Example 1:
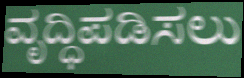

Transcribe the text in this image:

ವೃದ್ಧಿಪಡಿಸಲು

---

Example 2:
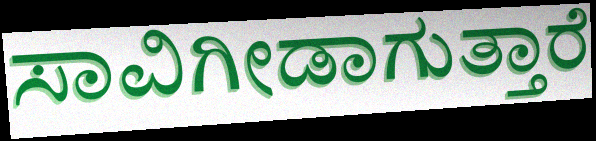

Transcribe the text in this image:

ಸಾವಿಗೀಡಾಗುತ್ತಾರೆ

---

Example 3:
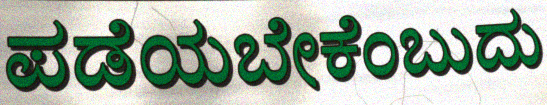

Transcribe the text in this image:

ಪಡೆಯಬೇಕೆಂಬುದು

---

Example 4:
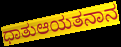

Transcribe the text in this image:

ಧಾತುಆಯತನಾನ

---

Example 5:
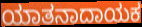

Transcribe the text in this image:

ಯಾತನಾದಾಯಕ